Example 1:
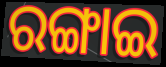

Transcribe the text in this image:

ରଙ୍ଗାଇ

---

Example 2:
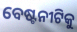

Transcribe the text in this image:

ବେଷ୍ଟନୀଟିକୁ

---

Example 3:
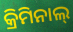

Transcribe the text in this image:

କ୍ରିମିନାଲ୍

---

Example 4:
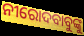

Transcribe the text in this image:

ନୀରୋଦବାବୁଙ୍କୁ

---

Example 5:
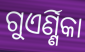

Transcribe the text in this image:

ଗୁଏର୍ଣ୍ଣିକା